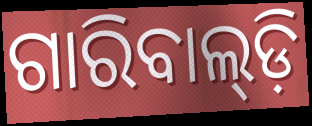
ଗାରିବାଲ୍‌ଡ଼ି